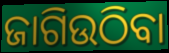
ଜାଗିଉଠିବା